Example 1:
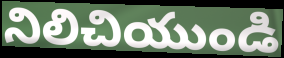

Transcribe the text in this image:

నిలిచియుండి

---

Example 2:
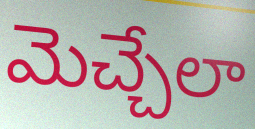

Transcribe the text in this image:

మెచ్చేలా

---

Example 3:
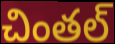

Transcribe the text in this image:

చింతల్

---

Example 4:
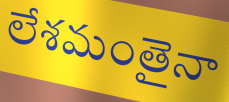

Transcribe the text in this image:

లేశమంతైనా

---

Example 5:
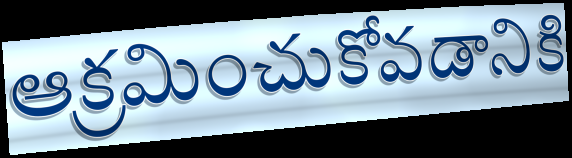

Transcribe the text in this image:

ఆక్రమించుకోవడానికి